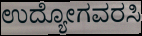
ಉದ್ಯೋಗವರಸಿ